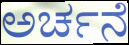
ಅರ್ಚನೆ